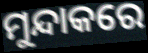
ମୁନ୍ଦାକରେ